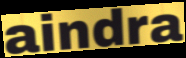
aindra